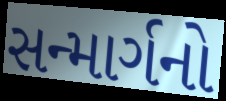
સન્માર્ગનો